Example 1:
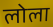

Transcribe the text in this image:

लोला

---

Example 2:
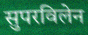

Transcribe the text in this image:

सुपरविलेन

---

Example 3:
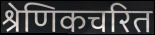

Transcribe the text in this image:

श्रेणिकचरित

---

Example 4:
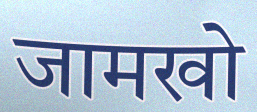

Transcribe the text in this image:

जामखो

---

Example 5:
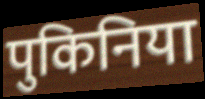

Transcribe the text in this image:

पुकिनिया